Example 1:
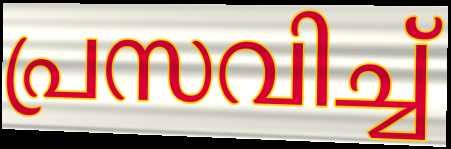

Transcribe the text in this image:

പ്രസവിച്ച്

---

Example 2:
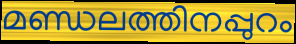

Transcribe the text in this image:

മണ്ഡലത്തിനപ്പുറം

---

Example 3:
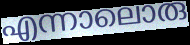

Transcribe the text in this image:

എന്നാലൊരു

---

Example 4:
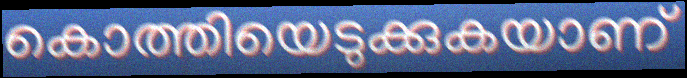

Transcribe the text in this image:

കൊത്തിയെടുക്കുകയാണ്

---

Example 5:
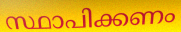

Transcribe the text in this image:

സ്ഥാപിക്കണം